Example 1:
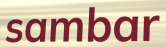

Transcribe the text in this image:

sambar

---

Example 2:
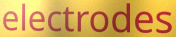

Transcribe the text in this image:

electrodes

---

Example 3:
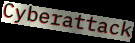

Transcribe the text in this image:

Cyberattack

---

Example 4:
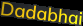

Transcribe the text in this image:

Dadabhai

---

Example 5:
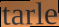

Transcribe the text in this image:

tarle